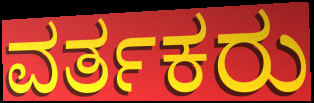
ವರ್ತಕರು